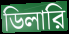
ডিলারি